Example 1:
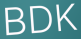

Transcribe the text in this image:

BDK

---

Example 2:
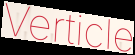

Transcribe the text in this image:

Verticle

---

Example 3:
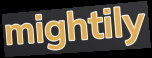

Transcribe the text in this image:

mightily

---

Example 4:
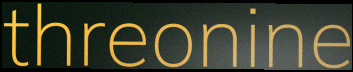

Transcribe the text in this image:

threonine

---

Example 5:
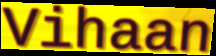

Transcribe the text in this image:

Vihaan